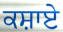
ਕਸ਼ਾਏ